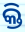
କ୍ତି